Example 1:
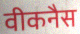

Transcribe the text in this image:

वीकनैस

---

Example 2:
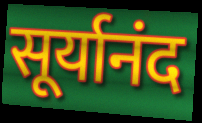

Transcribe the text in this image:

सूर्यानंद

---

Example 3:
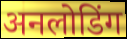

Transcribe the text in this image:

अनलोडिंग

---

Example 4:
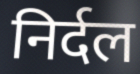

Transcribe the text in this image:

निर्दल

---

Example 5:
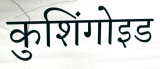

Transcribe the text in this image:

कुशिंगोइड